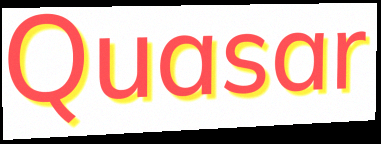
Quasar